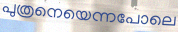
പുത്രനെയെന്നപോലെ